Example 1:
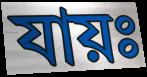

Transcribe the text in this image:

যায়ঃ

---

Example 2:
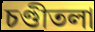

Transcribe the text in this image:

চণ্ডীতলা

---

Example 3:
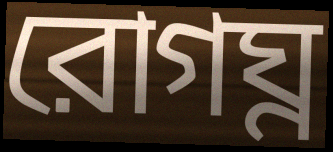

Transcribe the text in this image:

রোগঘ্ন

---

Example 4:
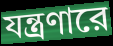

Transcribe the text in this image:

যন্ত্রণারে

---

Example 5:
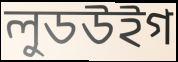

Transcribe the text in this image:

লুডউইগ